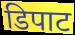
डिपाट